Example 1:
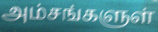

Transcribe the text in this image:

அம்சங்களுள்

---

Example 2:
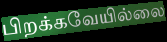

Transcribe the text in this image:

பிறக்கவேயில்லை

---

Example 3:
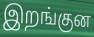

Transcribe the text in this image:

இறங்குன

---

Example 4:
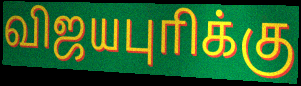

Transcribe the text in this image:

விஜயபுரிக்கு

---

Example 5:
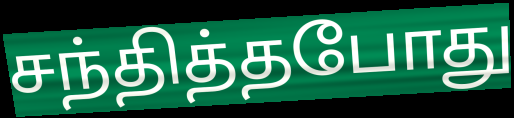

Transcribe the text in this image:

சந்தித்தபோது